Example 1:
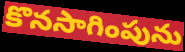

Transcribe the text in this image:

కొనసాగింపును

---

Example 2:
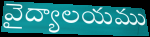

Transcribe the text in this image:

వైద్యాలయము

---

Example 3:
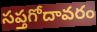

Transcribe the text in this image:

సప్తగోదావరం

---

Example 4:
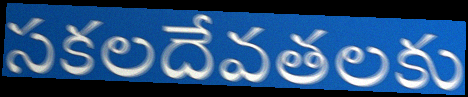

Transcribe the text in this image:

సకలదేవతలకు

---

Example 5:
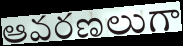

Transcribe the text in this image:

ఆవరణలుగా